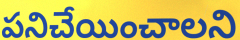
పనిచేయించాలని